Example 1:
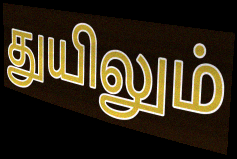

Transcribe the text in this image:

துயிலும்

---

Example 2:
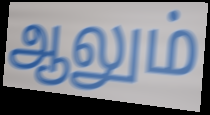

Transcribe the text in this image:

ஆலும்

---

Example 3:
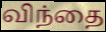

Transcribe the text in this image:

விந்தை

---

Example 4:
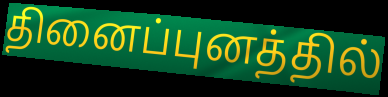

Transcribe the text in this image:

தினைப்புனத்தில்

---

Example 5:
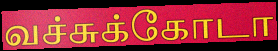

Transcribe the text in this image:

வச்சுக்கோடா